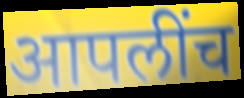
आपलींच